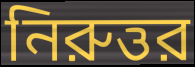
নিরুত্তর